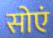
सोएं